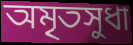
অমৃতসুধা